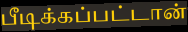
பீடிக்கப்பட்டான்